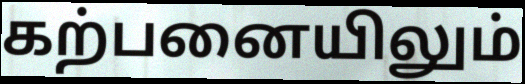
கற்பனையிலும்